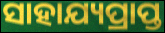
ସାହାଯ୍ୟପ୍ରାପ୍ତ